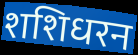
शशिधरन